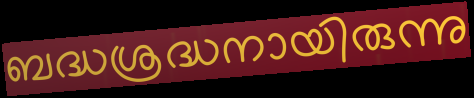
ബദ്ധശ്രദ്ധനായിരുന്നു